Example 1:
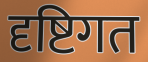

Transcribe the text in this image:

दृष्टिगत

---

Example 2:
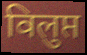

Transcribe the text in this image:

विलुप्त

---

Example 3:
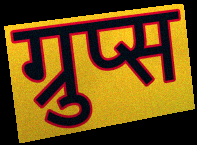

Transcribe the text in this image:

ग्रुप्स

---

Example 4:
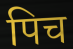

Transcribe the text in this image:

पिच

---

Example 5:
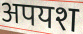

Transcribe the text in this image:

अपयश